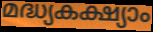
മദ്ധ്യകക്ഷ്യാം